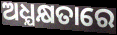
ଅଧ୍ଯକ୍ଷତାରେ